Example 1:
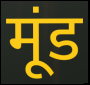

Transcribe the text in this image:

मूंड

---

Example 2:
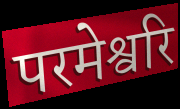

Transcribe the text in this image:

परमेश्वरि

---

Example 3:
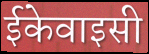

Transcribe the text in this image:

ईकेवाइसी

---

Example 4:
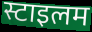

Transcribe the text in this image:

स्टाइलम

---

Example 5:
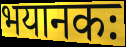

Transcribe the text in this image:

भयानकः